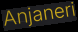
Anjaneri